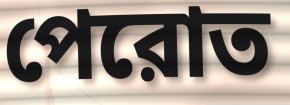
পেরোত